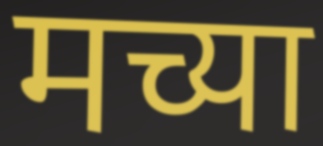
मच्या